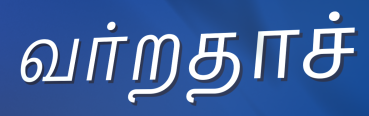
வர்றதாச்